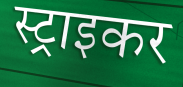
स्ट्राइकर